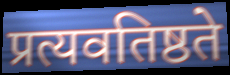
प्रत्यवतिष्ठते